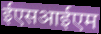
ईएसआईएम